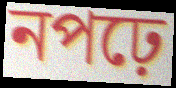
নপঢ়ে